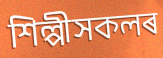
শিল্পীসকলৰ